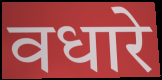
वधारे